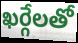
ఖర్గేలతో